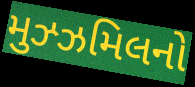
મુઝ્ઝમિલનો